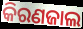
କିରଣଜାଲ